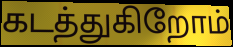
கடத்துகிறோம்